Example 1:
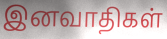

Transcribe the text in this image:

இனவாதிகள்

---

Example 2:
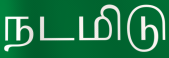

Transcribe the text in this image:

நடமிடு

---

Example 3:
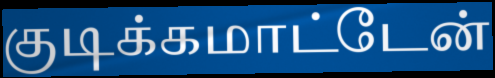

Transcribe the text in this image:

குடிக்கமாட்டேன்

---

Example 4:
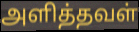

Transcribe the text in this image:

அளித்தவள்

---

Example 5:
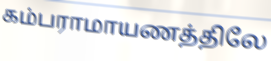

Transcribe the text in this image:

கம்பராமாயணத்திலே